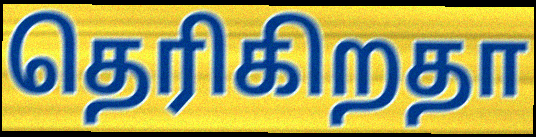
தெரிகிறதா